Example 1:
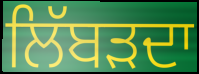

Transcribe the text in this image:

ਲਿੱਬੜਦਾ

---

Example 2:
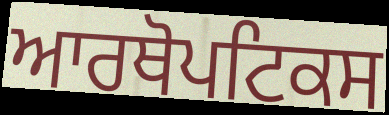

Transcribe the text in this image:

ਆਰਥੋਪਟਿਕਸ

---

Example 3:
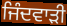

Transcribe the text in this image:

ਜਿੰਦਵਾੜੀ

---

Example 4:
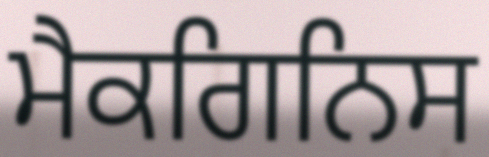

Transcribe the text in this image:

ਮੈਕਗਿਨਿਸ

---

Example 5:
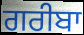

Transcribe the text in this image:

ਗਰੀਬਾ